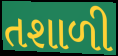
તશાળી